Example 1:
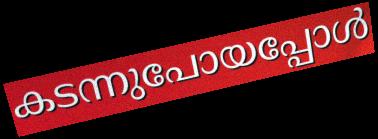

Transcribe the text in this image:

കടന്നുപോയപ്പോൾ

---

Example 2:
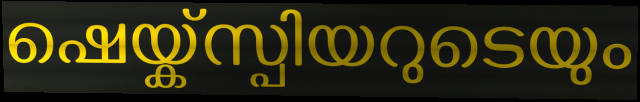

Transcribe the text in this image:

ഷെയ്ക്സ്പിയറുടെയും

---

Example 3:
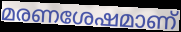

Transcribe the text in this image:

മരണശേഷമാണ്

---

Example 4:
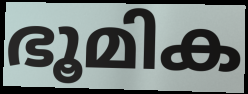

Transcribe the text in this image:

ഭൂമിക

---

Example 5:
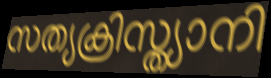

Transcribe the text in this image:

സത്യക്രിസ്ത്യാനി